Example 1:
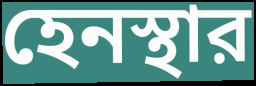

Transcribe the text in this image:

হেনস্থার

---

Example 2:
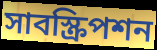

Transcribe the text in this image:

সাবস্ক্রিপশন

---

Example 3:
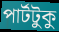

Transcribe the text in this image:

পার্টটুকু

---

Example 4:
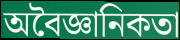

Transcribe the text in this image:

অবৈজ্ঞানিকতা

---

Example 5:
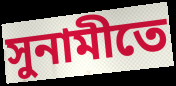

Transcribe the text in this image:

সুনামীতে